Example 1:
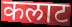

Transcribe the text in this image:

कलाट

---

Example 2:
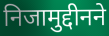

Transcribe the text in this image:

निजामुद्दीनने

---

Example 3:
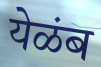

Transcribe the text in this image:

येळंब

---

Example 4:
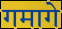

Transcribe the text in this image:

गमागे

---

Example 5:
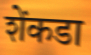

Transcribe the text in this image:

शेंकडा